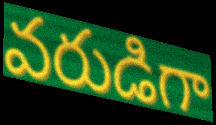
వరుడిగా